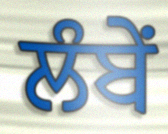
ਲੰਬੇਂ